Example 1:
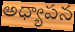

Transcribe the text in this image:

అధ్యాపన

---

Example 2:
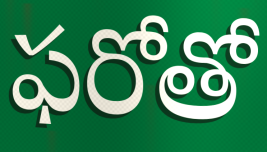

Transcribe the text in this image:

ఫరోతో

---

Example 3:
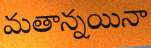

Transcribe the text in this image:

మతాన్నయినా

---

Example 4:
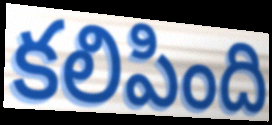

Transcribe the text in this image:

కలిపింది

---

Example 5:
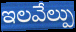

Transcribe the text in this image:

ఇలవేల్పు